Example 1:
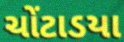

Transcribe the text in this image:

ચોંટાડયા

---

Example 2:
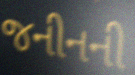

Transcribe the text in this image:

જનીનની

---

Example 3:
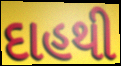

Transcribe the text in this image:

દાહથી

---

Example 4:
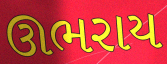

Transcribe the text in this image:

ઊભરાય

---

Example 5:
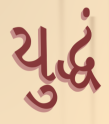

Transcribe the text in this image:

યુદ્ધં